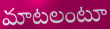
మాటలంటూ